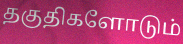
தகுதிகளோடும்